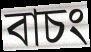
বাচং